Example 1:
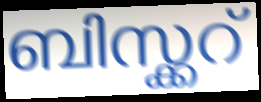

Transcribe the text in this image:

ബിസ്ക്കറ്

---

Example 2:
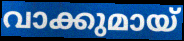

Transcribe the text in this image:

വാക്കുമായ്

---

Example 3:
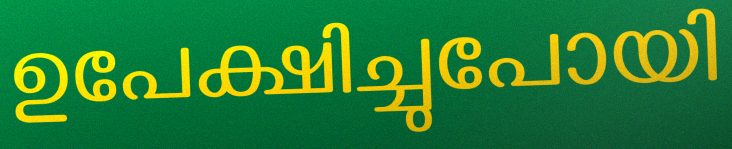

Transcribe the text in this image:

ഉപേക്ഷിച്ചുപോയി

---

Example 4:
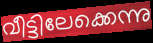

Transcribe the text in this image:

വീട്ടിലേക്കെന്നു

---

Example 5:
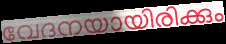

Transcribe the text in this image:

വേദനയായിരിക്കും